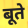
बूते